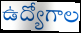
ఉద్యోగాల